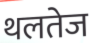
थलतेज